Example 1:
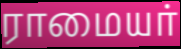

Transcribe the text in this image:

ராமையர்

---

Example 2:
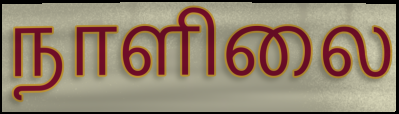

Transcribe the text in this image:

நாளிலை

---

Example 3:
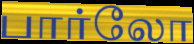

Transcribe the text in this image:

பார்லோ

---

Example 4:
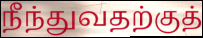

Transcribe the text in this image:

நீந்துவதற்குத்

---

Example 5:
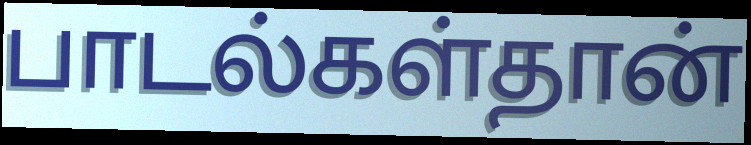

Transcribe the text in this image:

பாடல்கள்தான்